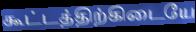
கூட்டத்திற்கிடையே